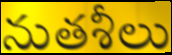
నుతశీలు